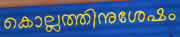
കൊല്ലത്തിനുശേഷം